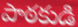
పాఠకుడి